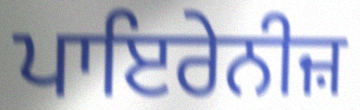
ਪਾਇਰੇਨੀਜ਼